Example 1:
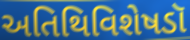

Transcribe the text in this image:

અતિથિવિશેષડૉ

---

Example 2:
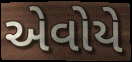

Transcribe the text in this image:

એવોયે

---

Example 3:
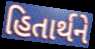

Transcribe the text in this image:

હિતાર્થને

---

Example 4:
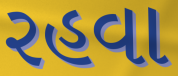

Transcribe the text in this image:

રહવા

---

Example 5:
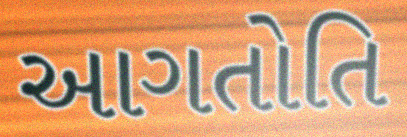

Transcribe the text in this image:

આગતોતિ